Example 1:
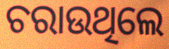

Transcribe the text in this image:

ଚରାଉଥିଲେ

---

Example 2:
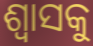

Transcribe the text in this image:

ଶ୍ଵାସକୁ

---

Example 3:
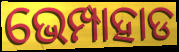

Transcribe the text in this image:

ଭେମ୍ପାହାଡ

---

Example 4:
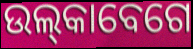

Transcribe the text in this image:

ଉଲ୍‌କାବେଗେ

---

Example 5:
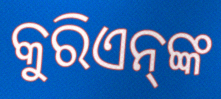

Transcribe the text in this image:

କୁରିଏନ୍‌ଙ୍କ